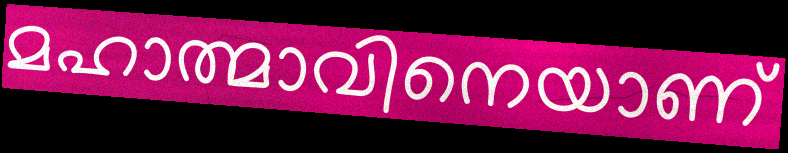
മഹാത്മാവിനെയാണ്